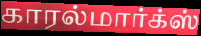
காரல்மார்க்ஸ்